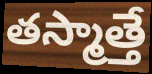
తస్మాత్తే